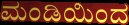
ಮಂಡಿಯಿಂದ